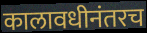
कालावधीनंतरच